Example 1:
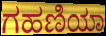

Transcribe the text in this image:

ಗಹಣಿಯಾ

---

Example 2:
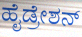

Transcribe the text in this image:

ಹೈಡ್ರೇಶನ್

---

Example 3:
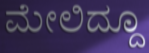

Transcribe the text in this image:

ಮೇಲಿದ್ದೂ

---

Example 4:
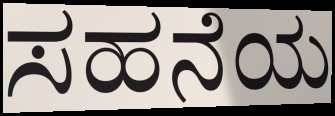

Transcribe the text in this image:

ಸಹನೆಯ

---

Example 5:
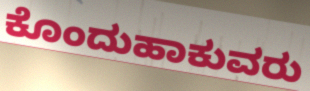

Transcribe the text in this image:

ಕೊಂದುಹಾಕುವರು